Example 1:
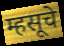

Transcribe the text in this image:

म्हसूचे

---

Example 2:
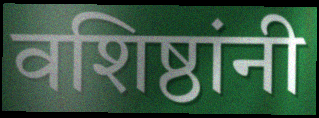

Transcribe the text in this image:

वशिष्ठांनी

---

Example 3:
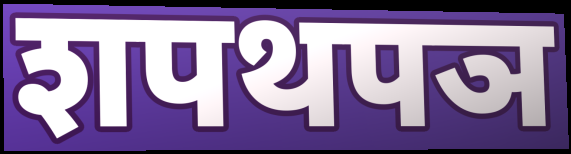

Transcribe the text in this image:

शपथपञ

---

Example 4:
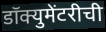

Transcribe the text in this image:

डॉक्युमेंटरीची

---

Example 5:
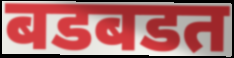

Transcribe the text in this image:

बडबडत